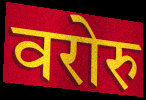
वरोरु